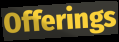
Offerings